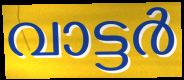
വാട്ടർ